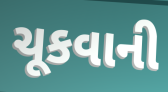
ચૂકવાની